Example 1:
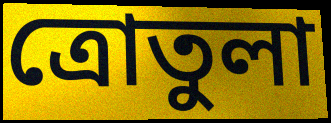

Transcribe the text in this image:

ত্রোতুলা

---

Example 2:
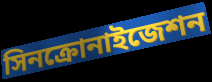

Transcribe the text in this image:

সিনক্রোনাইজেশন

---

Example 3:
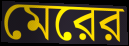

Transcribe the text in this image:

মেরের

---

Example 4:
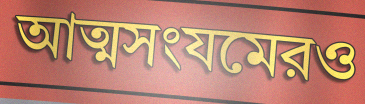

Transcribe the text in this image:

আত্মসংযমেরও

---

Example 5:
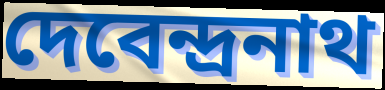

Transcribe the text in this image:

দেবেন্দ্রনাথ